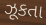
ઝૂકતા